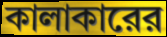
কালাকারের